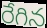
రేగిన